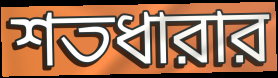
শতধারার